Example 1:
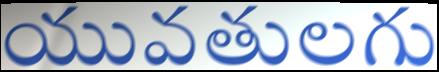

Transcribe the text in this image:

యువతులగు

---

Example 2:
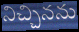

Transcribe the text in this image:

నిచ్చినను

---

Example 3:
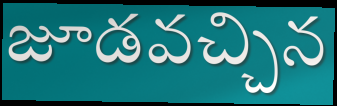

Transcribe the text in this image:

జూడవచ్చిన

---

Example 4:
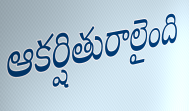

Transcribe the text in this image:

ఆకర్షితురాలైంది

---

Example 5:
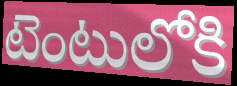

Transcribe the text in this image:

టెంటులోకి